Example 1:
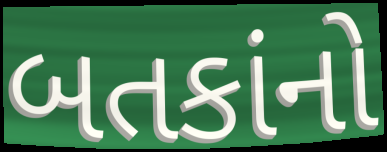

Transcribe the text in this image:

બતકાંનો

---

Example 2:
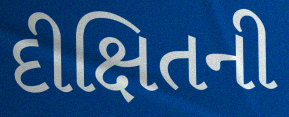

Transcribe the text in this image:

દીક્ષિતની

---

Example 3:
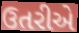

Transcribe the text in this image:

ઉતરીએ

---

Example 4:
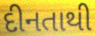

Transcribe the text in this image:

દીનતાથી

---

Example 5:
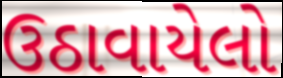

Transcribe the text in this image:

ઉઠાવાયેલો